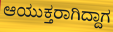
ಆಯುಕ್ತರಾಗಿದ್ದಾಗ